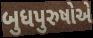
બુધપુરુષોએ